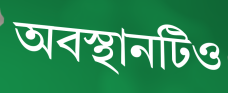
অবস্থানটিও